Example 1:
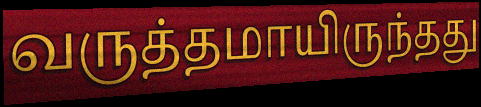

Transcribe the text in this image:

வருத்தமாயிருந்தது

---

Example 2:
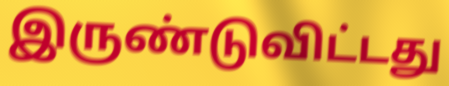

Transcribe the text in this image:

இருண்டுவிட்டது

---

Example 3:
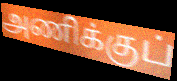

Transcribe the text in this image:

அணிக்குப்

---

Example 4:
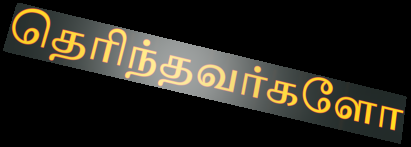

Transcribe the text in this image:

தெரிந்தவர்களோ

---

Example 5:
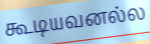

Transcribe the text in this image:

கூடியவனல்ல